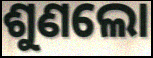
ଶୁଣଲୋ